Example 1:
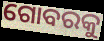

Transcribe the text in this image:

ଗୋବରକୁ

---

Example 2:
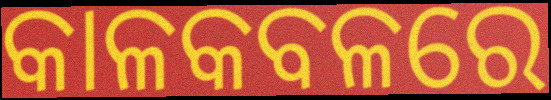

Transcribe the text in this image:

କାଳକବଳରେ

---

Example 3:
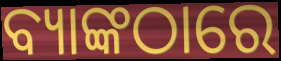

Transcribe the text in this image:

ବ୍ୟାଙ୍କଠାରେ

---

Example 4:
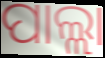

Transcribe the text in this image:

ପାଲ୍ଲା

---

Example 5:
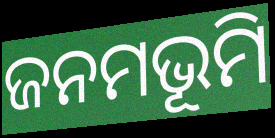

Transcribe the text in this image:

ଜନମଭୂମି